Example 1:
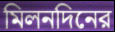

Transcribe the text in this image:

মিলনদিনের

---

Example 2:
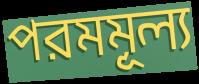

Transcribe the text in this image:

পরমমূল্য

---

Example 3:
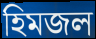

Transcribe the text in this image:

হিমজল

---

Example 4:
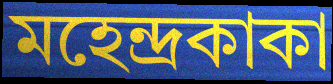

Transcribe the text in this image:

মহেন্দ্রকাকা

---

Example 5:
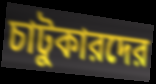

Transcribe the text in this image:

চাটুকারদের